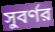
সুবর্ণর